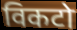
विकटो